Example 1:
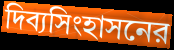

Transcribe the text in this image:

দিব্যসিংহাসনের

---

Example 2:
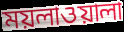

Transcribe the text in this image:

ময়লাওয়ালা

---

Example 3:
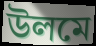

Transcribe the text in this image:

উলমে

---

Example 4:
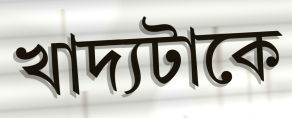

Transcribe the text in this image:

খাদ্যটাকে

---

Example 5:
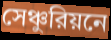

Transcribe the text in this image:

সেঞ্চুরিয়নে